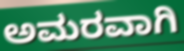
ಅಮರವಾಗಿ